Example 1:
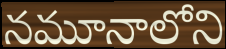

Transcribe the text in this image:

నమూనాలోని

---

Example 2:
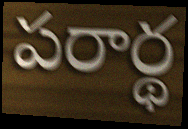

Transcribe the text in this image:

పరార్థ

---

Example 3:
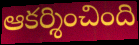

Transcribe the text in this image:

ఆకర్శించింది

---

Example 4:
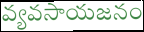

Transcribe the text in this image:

వ్యవసాయజనం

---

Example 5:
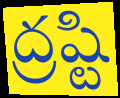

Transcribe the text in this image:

ద్రష్టి